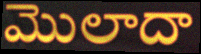
మొలాదా